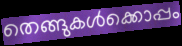
തെങ്ങുകൾക്കൊപ്പം